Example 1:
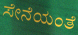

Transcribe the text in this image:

ಸೇನೆಯಂತೆ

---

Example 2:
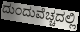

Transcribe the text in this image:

ದುಂದುವೆಚ್ಚದಲ್ಲಿ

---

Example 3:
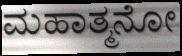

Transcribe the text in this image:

ಮಹಾತ್ಮನೋ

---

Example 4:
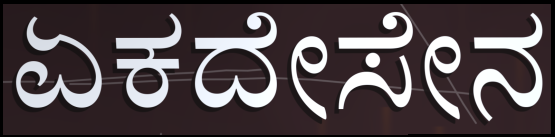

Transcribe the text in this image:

ಏಕದೇಸೇನ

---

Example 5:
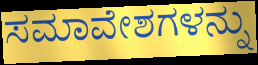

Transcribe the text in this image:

ಸಮಾವೇಶಗಳನ್ನು